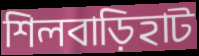
শিলবাড়িহাট